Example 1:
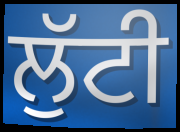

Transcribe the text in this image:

ਲੁੱਟੀ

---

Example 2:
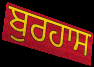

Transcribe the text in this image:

ਬੁਰਹਾਸ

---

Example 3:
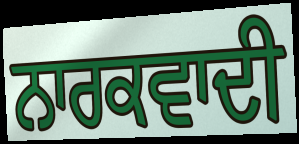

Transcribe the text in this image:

ਨਾਰਕਵਾਦੀ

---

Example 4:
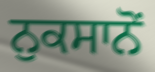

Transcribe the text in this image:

ਨੁਕਸਾਨੋਂ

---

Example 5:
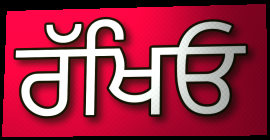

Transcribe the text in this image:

ਰੱਖਿਓ